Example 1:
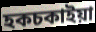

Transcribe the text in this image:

হকচকাইয়া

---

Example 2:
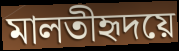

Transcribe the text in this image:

মালতীহৃদয়ে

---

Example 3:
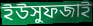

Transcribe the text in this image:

ইউসুফজাই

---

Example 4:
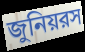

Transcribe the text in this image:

জুনিয়রস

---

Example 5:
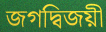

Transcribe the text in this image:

জগদ্বিজয়ী